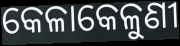
କେଳାକେଳୁଣୀ